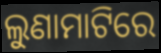
ଲୁଣାମାଟିରେ